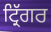
ਟ੍ਰਿੱਗਰ